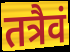
तत्रैवं